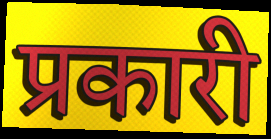
प्रकारी